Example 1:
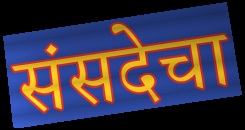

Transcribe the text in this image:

संसदेचा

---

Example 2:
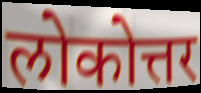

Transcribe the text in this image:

लोकोत्तर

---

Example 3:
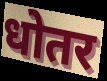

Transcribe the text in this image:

धोतर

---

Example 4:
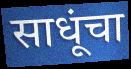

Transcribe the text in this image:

साधूंचा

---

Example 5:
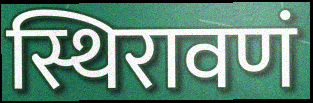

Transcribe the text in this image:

स्थिरावणं